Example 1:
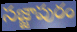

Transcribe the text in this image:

సజ్జాపురం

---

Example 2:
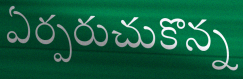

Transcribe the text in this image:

ఏర్పరుచుకొన్న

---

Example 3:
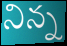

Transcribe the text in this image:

నిన్న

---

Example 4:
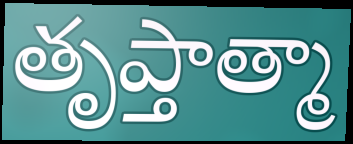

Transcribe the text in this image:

తృప్తాత్మా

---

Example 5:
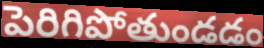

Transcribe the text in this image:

పెరిగిపోతుండడం